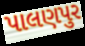
પાલણપુર